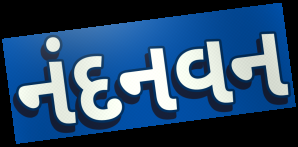
નંદનવન